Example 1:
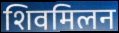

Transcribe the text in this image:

शिवमिलन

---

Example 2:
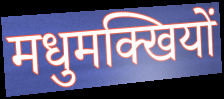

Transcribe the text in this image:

मधुमक्खियों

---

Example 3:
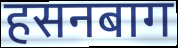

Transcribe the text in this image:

हसनबाग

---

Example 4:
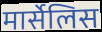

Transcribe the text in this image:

मार्सेलिस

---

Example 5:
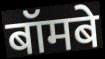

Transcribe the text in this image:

बॉमबे